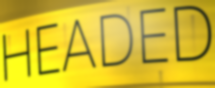
HEADED